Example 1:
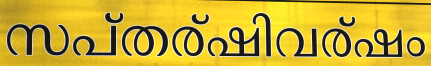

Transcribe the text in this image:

സപ്തര്ഷിവര്ഷം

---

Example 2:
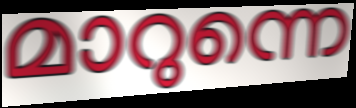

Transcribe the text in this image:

മാറുന്നെ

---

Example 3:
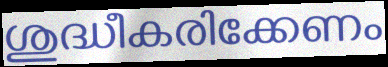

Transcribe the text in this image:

ശുദ്ധീകരിക്കേണം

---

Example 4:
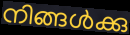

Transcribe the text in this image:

നിങ്ങൾക്കു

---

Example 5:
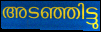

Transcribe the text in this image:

അടഞ്ഞിട്ടു